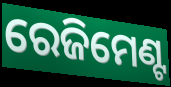
ରେଜିମେଣ୍ଟ